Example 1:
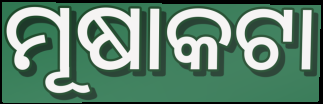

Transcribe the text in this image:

ମୂଷାକଟା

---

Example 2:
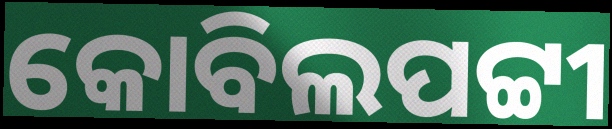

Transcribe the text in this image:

କୋବିଲପଟ୍ଟୀ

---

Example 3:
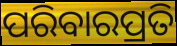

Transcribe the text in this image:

ପରିବାରପ୍ରତି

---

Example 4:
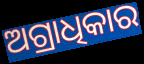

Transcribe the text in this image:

ଅଗ୍ରାଧିକାର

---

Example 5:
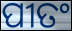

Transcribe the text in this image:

ପୀତଂ